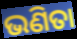
ଭଣିତା